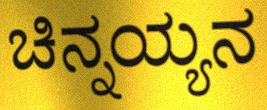
ಚಿನ್ನಯ್ಯನ